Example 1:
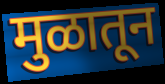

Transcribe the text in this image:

मुळातून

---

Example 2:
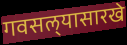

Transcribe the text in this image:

गवसल्यासारखे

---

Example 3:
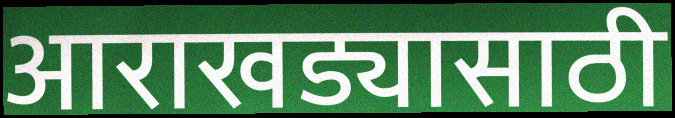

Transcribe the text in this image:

आराखड्यासाठी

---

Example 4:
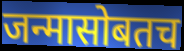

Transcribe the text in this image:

जन्मासोबतच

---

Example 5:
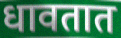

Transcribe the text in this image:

धावतात